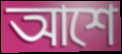
আশে